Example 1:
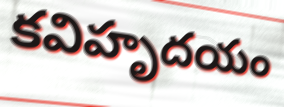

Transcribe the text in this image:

కవిహృదయం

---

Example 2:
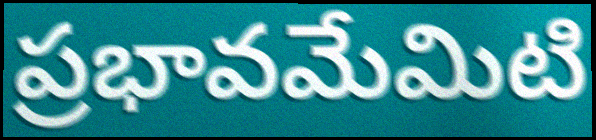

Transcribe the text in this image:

ప్రభావమేమిటి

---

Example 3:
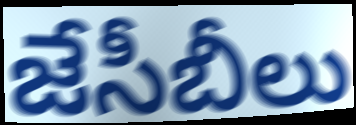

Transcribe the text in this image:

జేసీబీలు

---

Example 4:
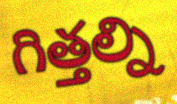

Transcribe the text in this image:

గిత్తల్ని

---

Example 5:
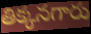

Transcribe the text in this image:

తిక్కనగారు